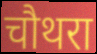
चौथरा